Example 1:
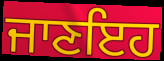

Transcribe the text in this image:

ਜਾਣਇਹ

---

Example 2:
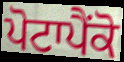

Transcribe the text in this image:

ਪੋਟਾਪੈਂਕੋ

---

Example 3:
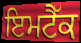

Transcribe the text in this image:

ਇਮਟੈੱਕ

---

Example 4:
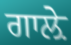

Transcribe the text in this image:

ਗਾਲ਼ੇ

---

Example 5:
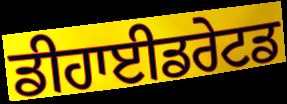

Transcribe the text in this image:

ਡੀਹਾਈਡਰੇਟਡ